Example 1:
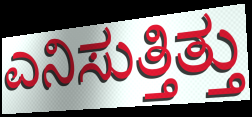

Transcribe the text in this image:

ಎನಿಸುತ್ತಿತ್ತು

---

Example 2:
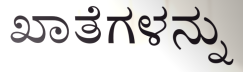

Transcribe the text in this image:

ಖಾತೆಗಳನ್ನು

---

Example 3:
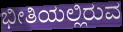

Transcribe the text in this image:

ಭೀತಿಯಲ್ಲಿರುವ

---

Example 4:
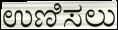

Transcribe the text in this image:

ಉಣಿಸಲು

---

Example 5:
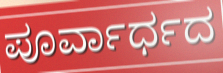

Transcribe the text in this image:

ಪೂರ್ವಾರ್ಧದ